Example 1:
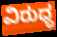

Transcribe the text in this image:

ವಿರುಧ್ಧ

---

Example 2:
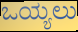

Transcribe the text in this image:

ಒಯ್ಯಲು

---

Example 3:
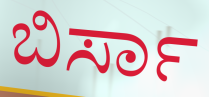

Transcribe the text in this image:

ಬಿರ್ಸಾ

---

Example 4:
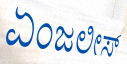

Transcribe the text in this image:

ಏಂಜಲೀಸ್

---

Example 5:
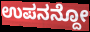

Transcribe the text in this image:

ಉಪನನ್ದೋ